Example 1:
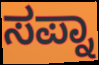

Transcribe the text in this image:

ಸಪ್ನಾ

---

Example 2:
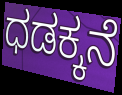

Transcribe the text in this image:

ಧಡಕ್ಕನೆ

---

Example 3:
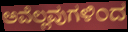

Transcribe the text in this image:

ಅವೆಲ್ಲವುಗಳಿಂದ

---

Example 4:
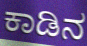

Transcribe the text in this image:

ಕಾಡಿನ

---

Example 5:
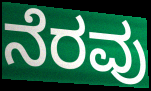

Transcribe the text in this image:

ನೆರವು